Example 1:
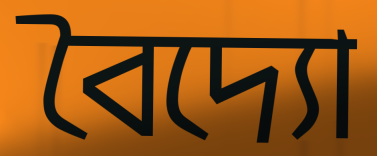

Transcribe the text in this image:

বৈদ্যো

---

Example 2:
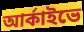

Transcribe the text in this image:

আর্কাইভে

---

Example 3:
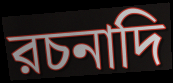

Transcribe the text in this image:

রচনাদি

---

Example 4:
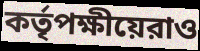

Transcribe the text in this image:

কর্তৃপক্ষীয়েরাও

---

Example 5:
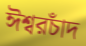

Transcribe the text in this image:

ঈশ্বরচাঁদ